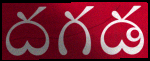
దగడ